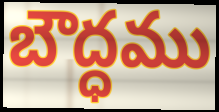
బౌద్ధము